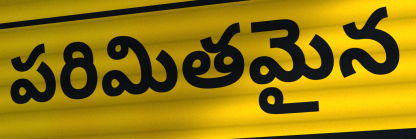
పరిమితమైన